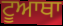
ਟੂਆਥਾ